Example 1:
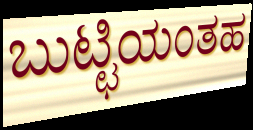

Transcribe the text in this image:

ಬುಟ್ಟಿಯಂತಹ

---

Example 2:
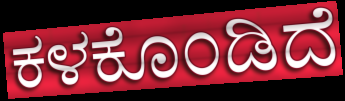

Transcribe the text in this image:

ಕಳಕೊಂಡಿದೆ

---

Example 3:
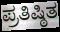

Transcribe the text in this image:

ಪ್ರತಿಷ್ಠಿತ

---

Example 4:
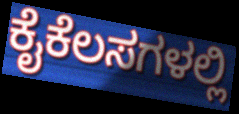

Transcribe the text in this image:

ಕೈಕೆಲಸಗಳಲ್ಲಿ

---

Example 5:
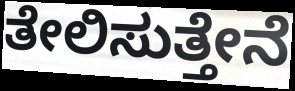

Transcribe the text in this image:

ತೇಲಿಸುತ್ತೇನೆ